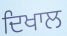
ਦਿਖਾਲ